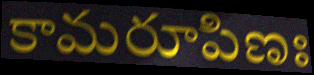
కామరూపిణః